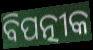
ବିପତ୍ନୀକ